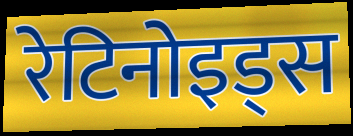
रेटिनोइड्स